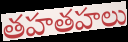
తహతహలు